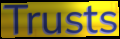
Trusts